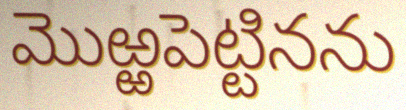
మొఱ్ఱపెట్టినను